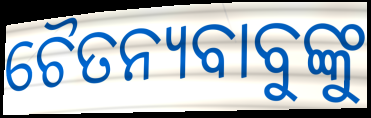
ଚୈତନ୍ୟବାବୁଙ୍କୁ